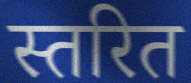
स्तरित